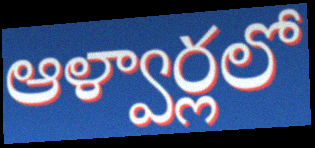
ఆళ్వార్లలో